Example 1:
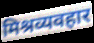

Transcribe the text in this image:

मिश्रव्यवहार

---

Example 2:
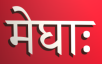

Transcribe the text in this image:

मेघाः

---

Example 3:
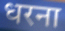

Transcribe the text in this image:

धरना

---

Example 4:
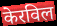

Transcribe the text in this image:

केरविल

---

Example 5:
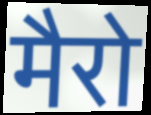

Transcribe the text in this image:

मैरो